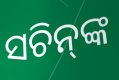
ସଚିନ୍‌ଙ୍କ